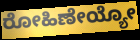
ರೋಹಿಣೇಯ್ಯೋ